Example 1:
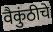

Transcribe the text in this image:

वैकुंठीचे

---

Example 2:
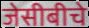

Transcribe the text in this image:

जेसीबीचे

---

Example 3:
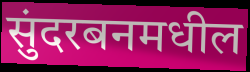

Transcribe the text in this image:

सुंदरबनमधील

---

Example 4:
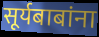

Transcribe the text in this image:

सूर्यबाबांना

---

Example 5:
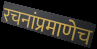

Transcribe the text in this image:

रचनांप्रमाणेच